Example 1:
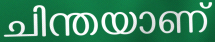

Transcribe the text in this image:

ചിന്തയാണ്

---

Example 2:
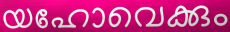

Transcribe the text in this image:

യഹോവെക്കും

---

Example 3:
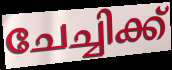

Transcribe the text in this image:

ചേച്ചിക്ക്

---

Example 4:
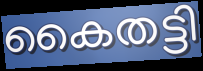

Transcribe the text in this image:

കൈതട്ടി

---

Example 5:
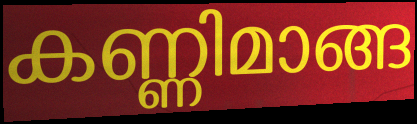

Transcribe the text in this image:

കണ്ണിമാങ്ങ